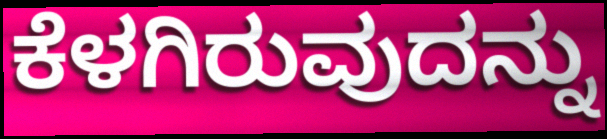
ಕೆಳಗಿರುವುದನ್ನು